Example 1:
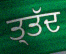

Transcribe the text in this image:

ਤ੍ਤੱਦ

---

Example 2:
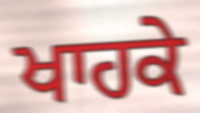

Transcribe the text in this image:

ਖਾਹਕੇ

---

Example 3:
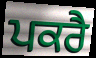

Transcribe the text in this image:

ਪਕਰੈ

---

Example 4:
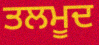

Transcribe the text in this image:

ਤਲਮੂਦ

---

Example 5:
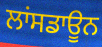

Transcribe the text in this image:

ਲਾਂਸਡਾਊਨ